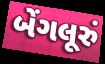
બેંગલૂરું